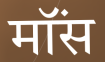
मॉंस